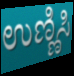
ಉಣ್ಣಿಸಿ